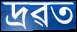
দ্ৰৱত